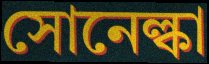
সোনেল্কা